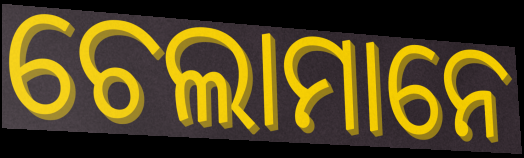
ଚେଲାମାନେ